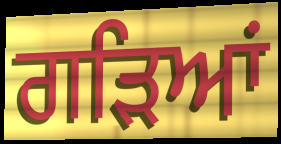
ਗੜਿਆਂ